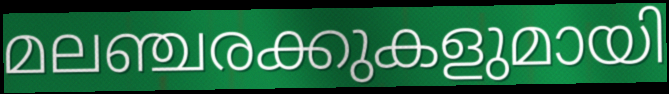
മലഞ്ചരക്കുകളുമായി